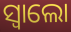
ସ୍ବାଲୋ